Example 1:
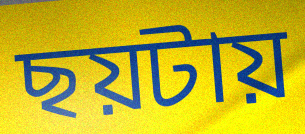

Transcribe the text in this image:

ছয়টায়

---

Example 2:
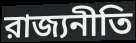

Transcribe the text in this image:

রাজ্যনীতি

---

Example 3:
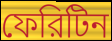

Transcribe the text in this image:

ফেরিটিন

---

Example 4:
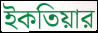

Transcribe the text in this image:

ইকতিয়ার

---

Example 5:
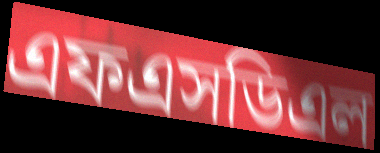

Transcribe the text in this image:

এফএসডিএল